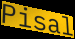
Pisal